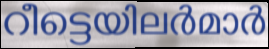
റീട്ടെയിലർമാർ